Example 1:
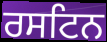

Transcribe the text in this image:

ਰਸਟਿਨ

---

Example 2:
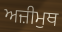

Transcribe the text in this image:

ਅਜ਼ੀਮੁਥ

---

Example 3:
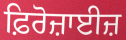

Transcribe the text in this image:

ਫ਼ਿਰੋਜ਼ਾਈਜ਼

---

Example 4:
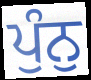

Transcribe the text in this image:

ਪੁੰਨੁ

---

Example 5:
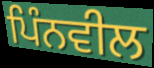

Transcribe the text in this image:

ਪਿੰਨਵੀਲ